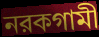
নরকগামী